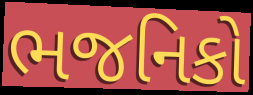
ભજનિકો